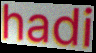
hadi